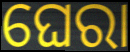
ଘେରା